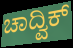
ಚಾದ್ವಿಕ್